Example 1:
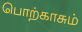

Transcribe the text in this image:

பொற்காசும்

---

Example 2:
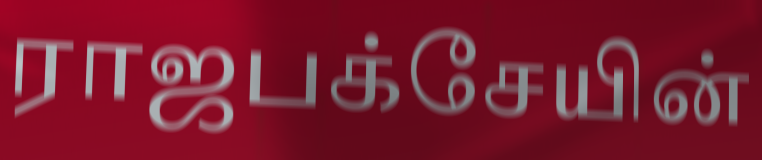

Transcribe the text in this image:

ராஜபக்சேயின்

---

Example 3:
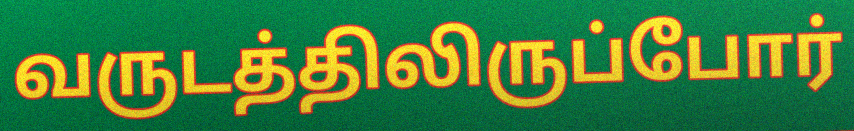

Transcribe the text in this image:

வருடத்திலிருப்போர்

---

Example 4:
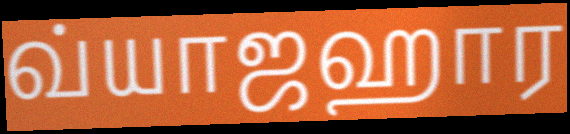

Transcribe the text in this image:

வ்யாஜஹார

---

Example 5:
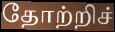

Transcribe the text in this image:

தோற்றிச்